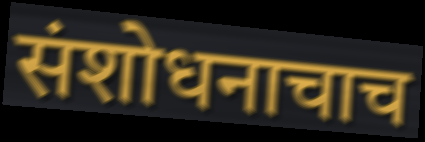
संशोधनाचाच